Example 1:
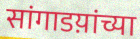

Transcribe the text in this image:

सांगाडय़ांच्या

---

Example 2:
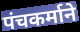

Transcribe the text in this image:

पंचकर्माने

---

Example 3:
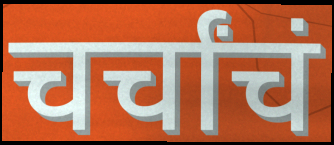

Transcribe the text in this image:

चर्चांचं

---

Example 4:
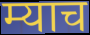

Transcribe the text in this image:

म्याच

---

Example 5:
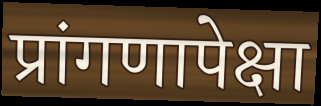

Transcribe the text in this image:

प्रांगणापेक्षा